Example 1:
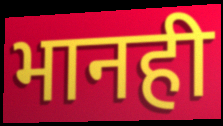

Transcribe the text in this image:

भानही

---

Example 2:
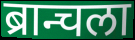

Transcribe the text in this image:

ब्रान्चला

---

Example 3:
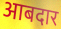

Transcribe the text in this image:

आबदार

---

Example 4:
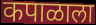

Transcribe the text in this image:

कपाळाला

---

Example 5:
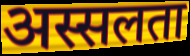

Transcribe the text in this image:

अस्सलता